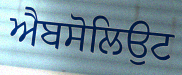
ਐਬਸੋਲਿਉਟ